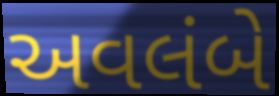
અવલંબે